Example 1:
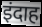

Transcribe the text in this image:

इंदाह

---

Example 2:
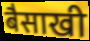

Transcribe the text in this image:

बैसाखी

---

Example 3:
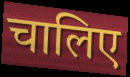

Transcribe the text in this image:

चालिए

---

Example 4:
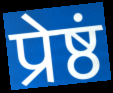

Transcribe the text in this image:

प्रेष्ठं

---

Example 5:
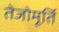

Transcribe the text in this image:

तेजोमूर्ति